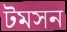
টমসন